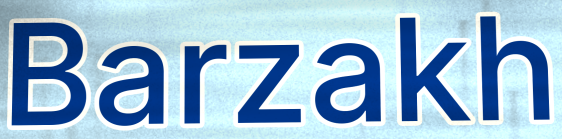
Barzakh